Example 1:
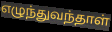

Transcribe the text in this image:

எழுந்துவந்தாள்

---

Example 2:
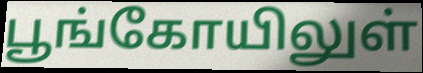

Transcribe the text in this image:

பூங்கோயிலுள்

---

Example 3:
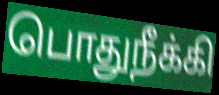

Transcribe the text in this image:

பொதுநீக்கி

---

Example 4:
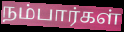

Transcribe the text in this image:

நம்பார்கள்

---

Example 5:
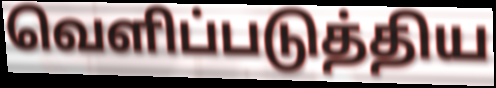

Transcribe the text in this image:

வெளிப்படுத்திய